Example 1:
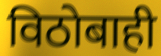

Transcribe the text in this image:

विठोबाही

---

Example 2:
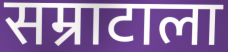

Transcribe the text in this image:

सम्राटाला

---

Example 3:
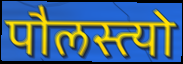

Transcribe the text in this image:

पौलस्त्यो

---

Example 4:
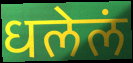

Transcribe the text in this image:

धलेलं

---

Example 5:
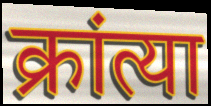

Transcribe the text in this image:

क्रांत्या